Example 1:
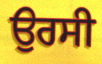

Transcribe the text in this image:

ਉਰਸੀ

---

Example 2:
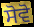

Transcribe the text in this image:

ਸੋਵੋ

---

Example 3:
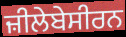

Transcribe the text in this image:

ਜ਼ੀਲੇਬੇਸੀਰਨ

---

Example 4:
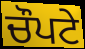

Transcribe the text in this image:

ਚੌਪਟੇ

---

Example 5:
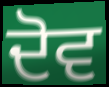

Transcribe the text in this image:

ਦੋਵ